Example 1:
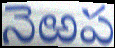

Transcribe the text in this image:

నెఱప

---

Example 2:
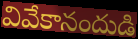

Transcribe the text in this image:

వివేకానందుడి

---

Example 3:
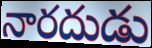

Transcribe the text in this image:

నారదుడు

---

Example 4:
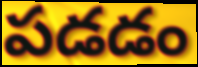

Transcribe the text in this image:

పడడం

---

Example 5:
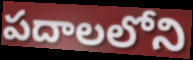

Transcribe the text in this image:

పదాలలోని